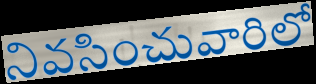
నివసించువారిలో